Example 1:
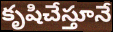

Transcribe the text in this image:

కృషిచేస్తూనే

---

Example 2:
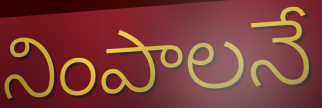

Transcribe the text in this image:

నింపాలనే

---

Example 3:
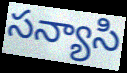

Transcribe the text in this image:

సన్యాసి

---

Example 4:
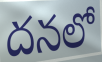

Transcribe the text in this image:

దనలో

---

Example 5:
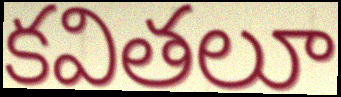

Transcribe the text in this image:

కవితలూ